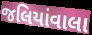
જલિયાંવાલા